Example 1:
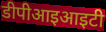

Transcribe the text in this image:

डीपीआइआइटी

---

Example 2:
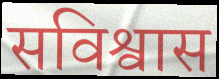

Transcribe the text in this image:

सविश्वास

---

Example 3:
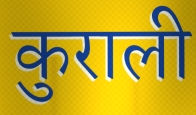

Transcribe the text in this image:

कुराली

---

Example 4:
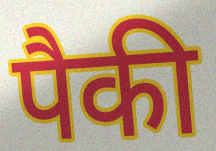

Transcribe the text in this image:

पैकी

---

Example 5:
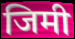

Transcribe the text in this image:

जिमी